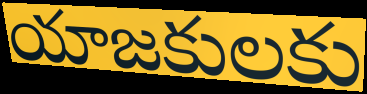
యాజకులకు